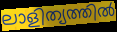
ലാളിത്യത്തിൽ